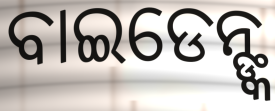
ବାଇଡେନ୍ଙ୍କ